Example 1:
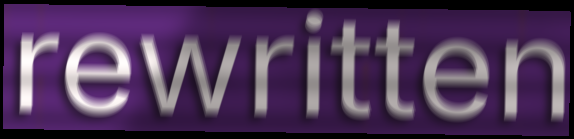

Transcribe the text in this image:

rewritten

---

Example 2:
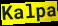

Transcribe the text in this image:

Kalpa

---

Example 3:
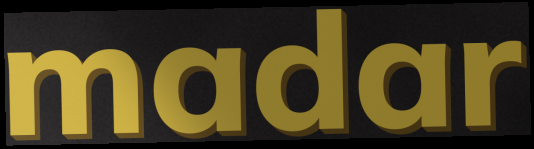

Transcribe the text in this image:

madar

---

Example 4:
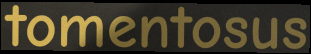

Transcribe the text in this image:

tomentosus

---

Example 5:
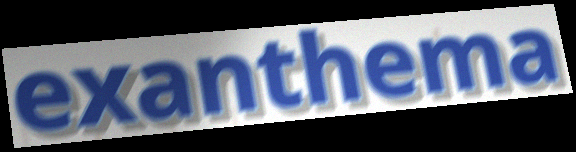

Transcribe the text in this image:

exanthema